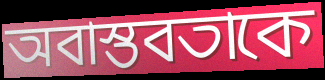
অবাস্তবতাকে